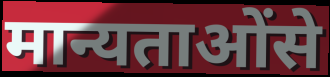
मान्यताओंसे